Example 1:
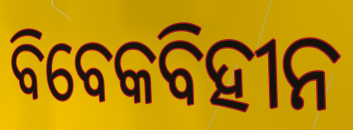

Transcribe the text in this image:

ବିବେକବିହୀନ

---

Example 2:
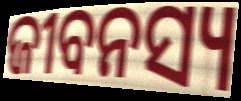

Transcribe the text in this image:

ଜୀବନସ୍ୟ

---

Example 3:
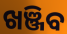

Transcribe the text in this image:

ଖଞ୍ଜିବ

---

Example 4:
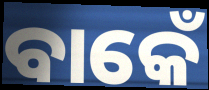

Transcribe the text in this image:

ବାକେଁ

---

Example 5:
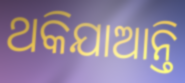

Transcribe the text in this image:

ଥକିଯାଆନ୍ତି